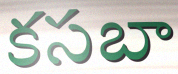
కసబా